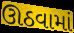
ઊઠવામાં